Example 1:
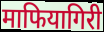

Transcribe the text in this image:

माफियागिरी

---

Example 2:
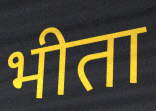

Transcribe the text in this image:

भीता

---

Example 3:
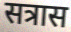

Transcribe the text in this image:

सत्रास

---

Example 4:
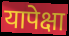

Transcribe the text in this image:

यापेक्षा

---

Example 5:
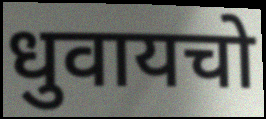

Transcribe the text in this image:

धुवायचो